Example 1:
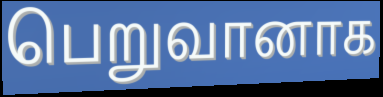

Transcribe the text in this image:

பெறுவானாக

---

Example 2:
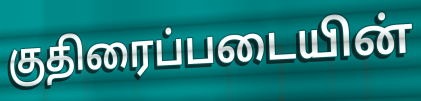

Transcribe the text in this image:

குதிரைப்படையின்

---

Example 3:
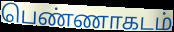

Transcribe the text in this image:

பெண்ணாகடம்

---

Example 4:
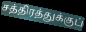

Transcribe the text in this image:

சத்திரத்துக்குப்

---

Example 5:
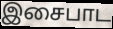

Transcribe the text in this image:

இசைபாட